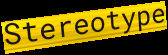
Stereotype